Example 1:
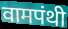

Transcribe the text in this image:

वामपंथी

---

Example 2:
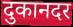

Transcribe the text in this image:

दुकानदर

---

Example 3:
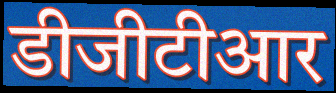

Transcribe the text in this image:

डीजीटीआर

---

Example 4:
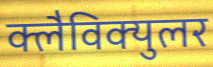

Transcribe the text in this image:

क्लैविक्युलर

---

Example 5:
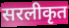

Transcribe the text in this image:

सरलीकृत